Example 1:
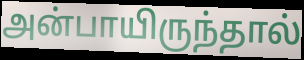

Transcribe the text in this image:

அன்பாயிருந்தால்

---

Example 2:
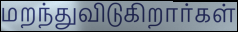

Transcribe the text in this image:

மறந்துவிடுகிறார்கள்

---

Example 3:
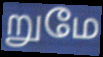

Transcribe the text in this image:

றுமே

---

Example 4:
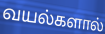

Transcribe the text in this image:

வயல்களால்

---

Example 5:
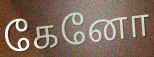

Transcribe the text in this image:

கேனோ